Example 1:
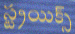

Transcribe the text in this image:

స్ట్రయిక్స్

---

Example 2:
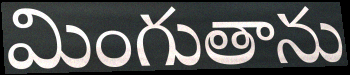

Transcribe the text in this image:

మింగుతాను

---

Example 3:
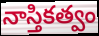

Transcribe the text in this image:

నాస్తికత్వం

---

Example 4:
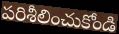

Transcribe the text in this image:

పరిశీలించుకోండి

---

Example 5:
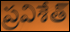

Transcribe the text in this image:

ప్రవిశేత్